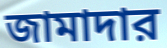
জামাদার